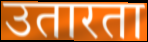
उतारता